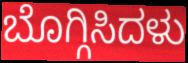
ಬೊಗ್ಗಿಸಿದಳು